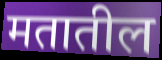
मतातील